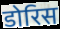
डोरिस